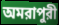
অমরাপুরী